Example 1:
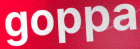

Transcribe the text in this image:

goppa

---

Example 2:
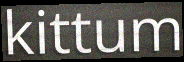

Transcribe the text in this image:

kittum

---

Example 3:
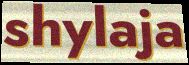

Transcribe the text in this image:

shylaja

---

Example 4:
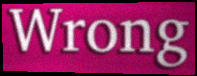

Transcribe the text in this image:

Wrong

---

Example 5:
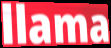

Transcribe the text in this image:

llama